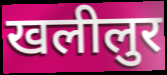
खलीलुर